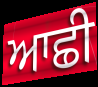
ਆਛੀ